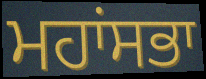
ਮਹਾਂਸਭਾ